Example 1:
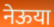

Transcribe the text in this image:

नेऊया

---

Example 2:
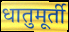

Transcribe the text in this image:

धातुमूर्ती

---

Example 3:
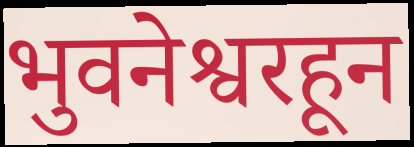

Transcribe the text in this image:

भुवनेश्वरहून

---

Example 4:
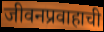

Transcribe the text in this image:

जीवनप्रवाहाची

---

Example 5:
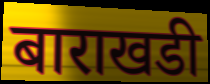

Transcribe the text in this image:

बाराखडी